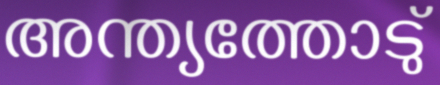
അന്ത്യത്തോടു്